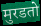
मुरडतो